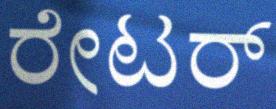
ರೇಟರ್